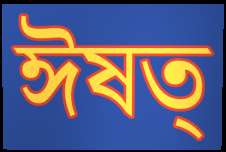
ঈষত্